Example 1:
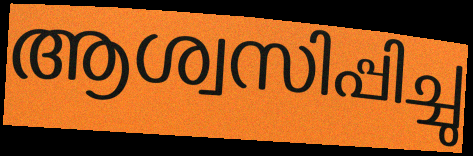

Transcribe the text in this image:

ആശ്വസിപ്പിച്ചു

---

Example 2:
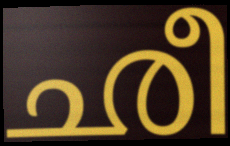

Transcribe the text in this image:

ഛീ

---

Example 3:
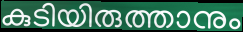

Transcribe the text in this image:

കുടിയിരുത്താനും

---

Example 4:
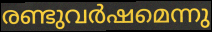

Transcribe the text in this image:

രണ്ടുവർഷമെന്നു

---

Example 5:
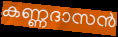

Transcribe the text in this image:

കണ്ണദാസൻ